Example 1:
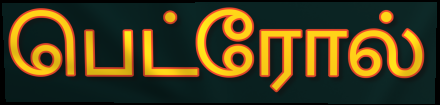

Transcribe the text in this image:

பெட்ரோல்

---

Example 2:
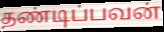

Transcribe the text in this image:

தண்டிப்பவன்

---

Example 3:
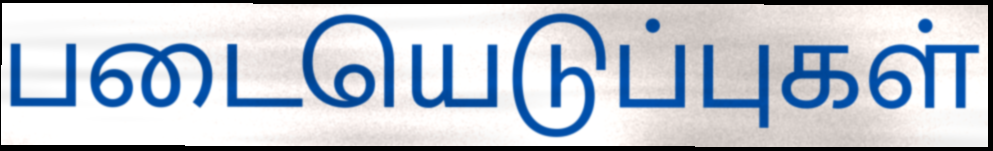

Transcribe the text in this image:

படையெடுப்புகள்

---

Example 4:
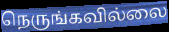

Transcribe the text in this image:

நெருங்கவில்லை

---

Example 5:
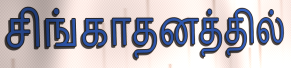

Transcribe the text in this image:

சிங்காதனத்தில்